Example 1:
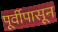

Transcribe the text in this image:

पूर्वीपासून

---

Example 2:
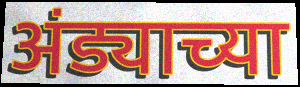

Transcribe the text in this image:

अंड्याच्या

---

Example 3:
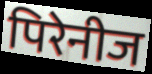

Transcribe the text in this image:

पिरेनीज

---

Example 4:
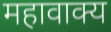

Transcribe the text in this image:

महावाक्य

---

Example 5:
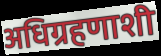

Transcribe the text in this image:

अधिग्रहणाशी